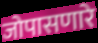
जोपासणारे